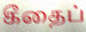
கீதைப்